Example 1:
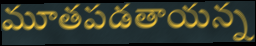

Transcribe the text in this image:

మూతపడతాయన్న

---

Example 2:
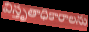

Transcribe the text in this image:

విస్తృతాధికారాలను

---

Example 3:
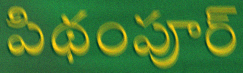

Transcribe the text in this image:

పిథంపూర్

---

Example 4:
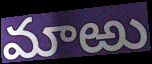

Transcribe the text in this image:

మాఱు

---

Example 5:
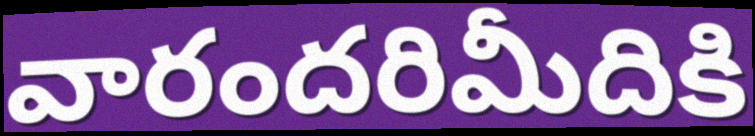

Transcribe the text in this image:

వారందరిమీదికి